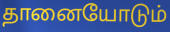
தானையோடும்